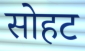
सोहट